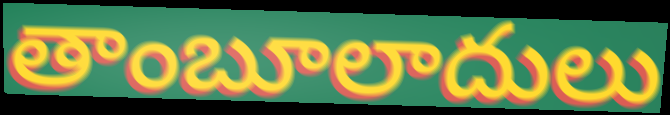
తాంబూలాదులు